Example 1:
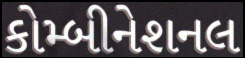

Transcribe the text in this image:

કોમ્બીનેશનલ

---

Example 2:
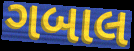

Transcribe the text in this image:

ગબાલ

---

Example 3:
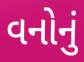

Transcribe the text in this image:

વનોનું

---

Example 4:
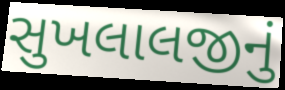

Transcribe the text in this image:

સુખલાલજીનું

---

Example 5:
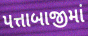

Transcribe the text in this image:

પત્તાબાજીમાં